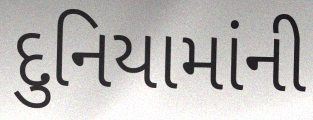
દુનિયામાંની